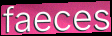
faeces